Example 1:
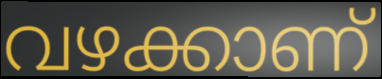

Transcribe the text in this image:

വഴക്കാണ്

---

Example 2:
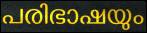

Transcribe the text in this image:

പരിഭാഷയും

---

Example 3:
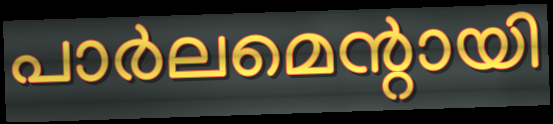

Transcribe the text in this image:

പാർലമെന്റായി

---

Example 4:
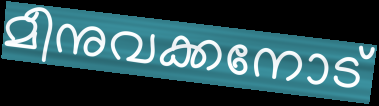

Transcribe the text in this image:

മീനുവക്കനോട്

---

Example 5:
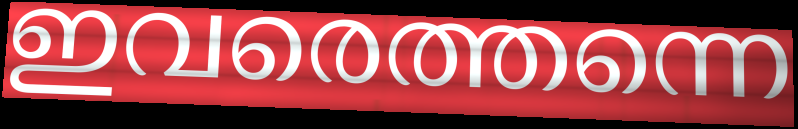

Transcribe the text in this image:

ഇവരെത്തന്നെ